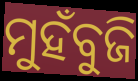
ମୁହଁବୁଜି